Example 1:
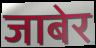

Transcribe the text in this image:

जाबेर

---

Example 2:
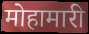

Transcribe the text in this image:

मोहामारी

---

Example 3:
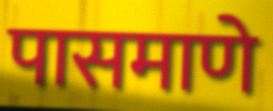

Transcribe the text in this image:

पासमाणे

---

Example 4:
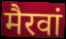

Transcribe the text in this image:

मैरवां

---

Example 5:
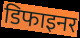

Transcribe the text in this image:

डिफाइनर